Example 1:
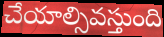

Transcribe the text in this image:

చేయాల్సివస్తుంది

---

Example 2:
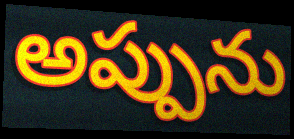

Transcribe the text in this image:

అప్పును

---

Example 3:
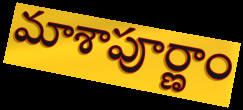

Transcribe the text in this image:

మాశాపూర్ణాం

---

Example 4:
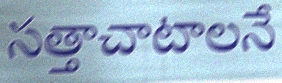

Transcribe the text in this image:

సత్తాచాటాలనే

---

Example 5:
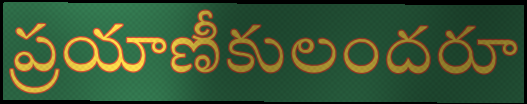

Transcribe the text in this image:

ప్రయాణీకులందరూ